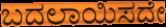
ಬದಲಾಯಿಸದೇ